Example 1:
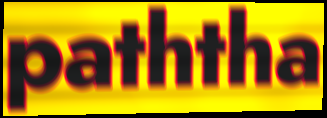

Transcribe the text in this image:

paththa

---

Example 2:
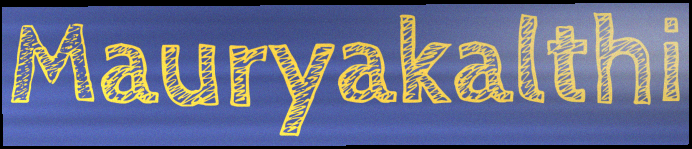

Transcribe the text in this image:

Mauryakalthi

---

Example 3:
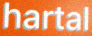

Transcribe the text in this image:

hartal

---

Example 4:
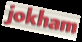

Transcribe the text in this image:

jokham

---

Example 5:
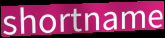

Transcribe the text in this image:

shortname